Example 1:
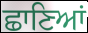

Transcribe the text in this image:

ਛਾਣਿਆਂ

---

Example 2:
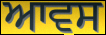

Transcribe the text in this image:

ਆਵਸ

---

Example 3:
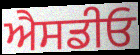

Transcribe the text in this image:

ਐਸਡੀਓ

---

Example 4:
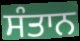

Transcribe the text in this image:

ਸੰਤਾਨ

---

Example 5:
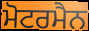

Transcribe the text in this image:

ਮੋਟਰਮੈਨ